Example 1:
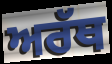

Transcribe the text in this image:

ਅਰੱਥ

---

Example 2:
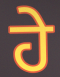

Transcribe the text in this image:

ਹੇ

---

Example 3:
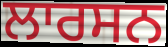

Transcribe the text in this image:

ਲਾਰਸਨ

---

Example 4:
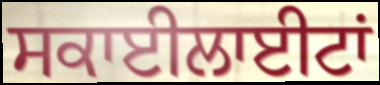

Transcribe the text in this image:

ਸਕਾਈਲਾਈਟਾਂ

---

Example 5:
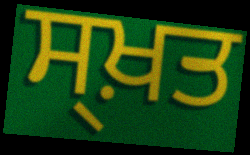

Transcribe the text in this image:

ਸ੍ਖ਼ਤ